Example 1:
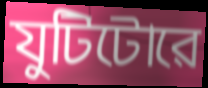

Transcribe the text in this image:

যুটিটোৱে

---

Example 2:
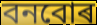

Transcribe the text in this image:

বনবোৰ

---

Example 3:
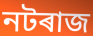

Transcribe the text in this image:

নটৰাজ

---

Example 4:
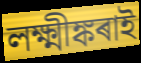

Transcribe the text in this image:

লক্ষ্মীঙ্কৰাই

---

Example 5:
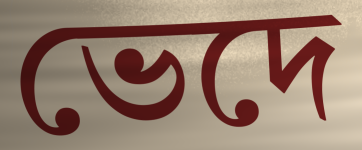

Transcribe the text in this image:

ভেদে